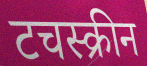
टचस्क्रीन